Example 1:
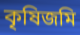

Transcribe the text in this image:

কৃষিজমি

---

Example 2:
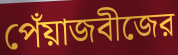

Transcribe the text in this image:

পেঁয়াজবীজের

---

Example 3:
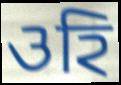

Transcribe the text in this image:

ওহি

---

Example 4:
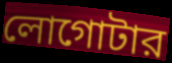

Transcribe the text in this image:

লোগোটার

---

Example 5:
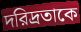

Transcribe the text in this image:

দরিদ্রতাকে